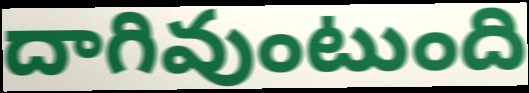
దాగివుంటుంది